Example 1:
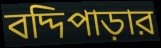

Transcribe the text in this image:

বদ্দিপাড়ার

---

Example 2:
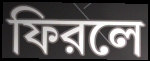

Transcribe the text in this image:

ফিরলে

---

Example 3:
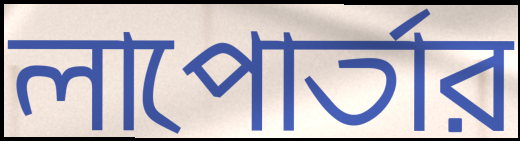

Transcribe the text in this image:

লাপোর্তার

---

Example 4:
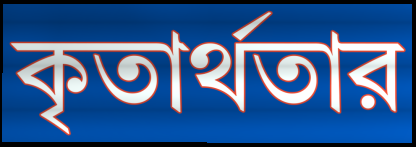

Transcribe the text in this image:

কৃতার্থতার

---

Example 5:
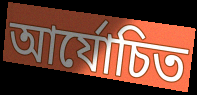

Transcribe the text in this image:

আর্যোচিত